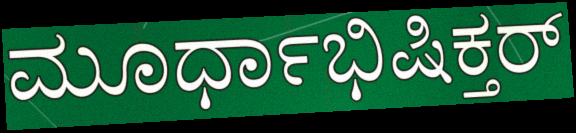
ಮೂರ್ಧಾಭಿಷಿಕ್ತರ್